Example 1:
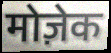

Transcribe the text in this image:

मोज़ेक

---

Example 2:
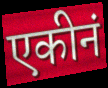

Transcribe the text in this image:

एकीनं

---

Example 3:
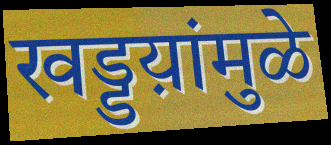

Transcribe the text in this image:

खड्डय़ांमुळे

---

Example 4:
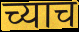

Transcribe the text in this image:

च्याच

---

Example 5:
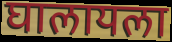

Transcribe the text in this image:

घालायला